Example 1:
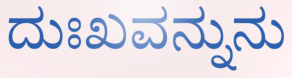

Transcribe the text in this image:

ದುಃಖವನ್ನುನು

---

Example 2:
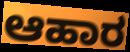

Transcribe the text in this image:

ಆಹಾರ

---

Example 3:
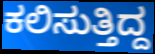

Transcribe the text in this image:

ಕಲಿಸುತ್ತಿದ್ದ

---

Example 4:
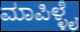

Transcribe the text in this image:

ಮಾಪಿಳ್ಳೈ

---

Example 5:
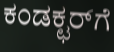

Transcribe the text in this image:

ಕಂಡಕ್ಟರ್‌ಗೆ